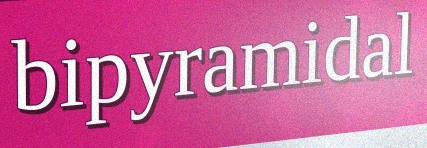
bipyramidal